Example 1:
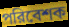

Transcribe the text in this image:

পরিবেশক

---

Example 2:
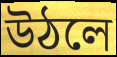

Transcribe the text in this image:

উঠলে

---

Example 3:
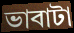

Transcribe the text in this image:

ভাবাটা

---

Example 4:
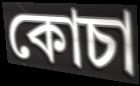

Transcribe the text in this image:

কোচা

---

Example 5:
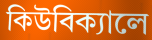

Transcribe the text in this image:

কিউবিক্যালে